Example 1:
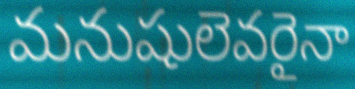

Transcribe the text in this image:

మనుషులెవరైనా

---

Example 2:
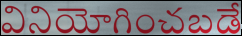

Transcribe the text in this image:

వినియోగించబడే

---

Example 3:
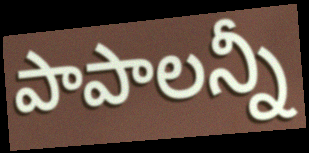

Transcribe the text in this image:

పాపాలన్నీ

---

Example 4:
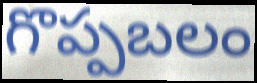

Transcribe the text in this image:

గొప్పబలం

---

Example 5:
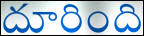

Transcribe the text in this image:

దూరింది